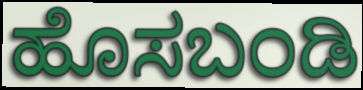
ಹೊಸಬಂಡಿ